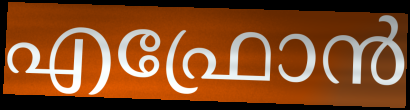
എഫ്രോൻ